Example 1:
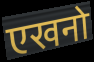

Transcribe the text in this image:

एखनो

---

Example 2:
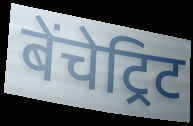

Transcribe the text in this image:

बेंचेट्रिट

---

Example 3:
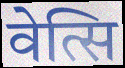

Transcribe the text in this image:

वेत्सि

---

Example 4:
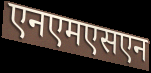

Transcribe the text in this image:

एनएमएसएन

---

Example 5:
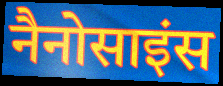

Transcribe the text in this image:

नैनोसाइंस